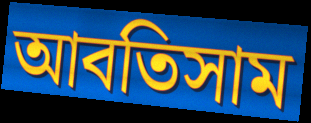
আবতিসাম